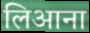
लिआना